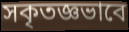
সকৃতজ্ঞভাবে